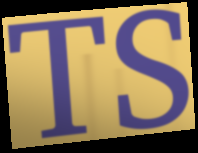
TS